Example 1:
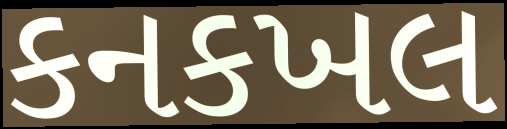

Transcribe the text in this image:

કનકખલ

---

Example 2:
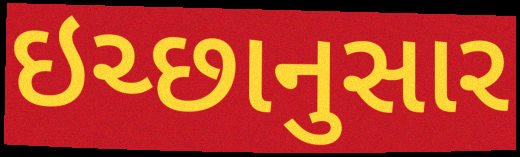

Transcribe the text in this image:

ઇચ્છાનુસાર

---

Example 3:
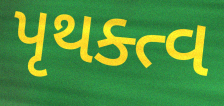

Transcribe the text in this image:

પૃથક્ત્વ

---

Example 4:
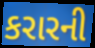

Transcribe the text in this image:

કરારની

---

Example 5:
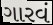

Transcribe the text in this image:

ગારવં